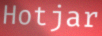
Hotjar